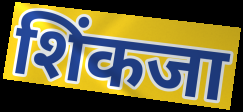
शिंकजा